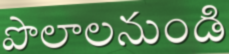
పొలాలనుండి